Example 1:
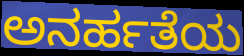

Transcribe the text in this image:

ಅನರ್ಹತೆಯ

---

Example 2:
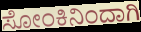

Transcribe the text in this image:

ಸೋಂಕಿನಿಂದಾಗಿ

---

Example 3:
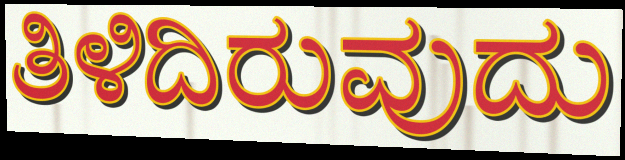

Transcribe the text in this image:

ತಿಳಿದಿರುವುದು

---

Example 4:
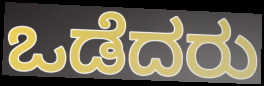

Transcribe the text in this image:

ಒಡೆದರು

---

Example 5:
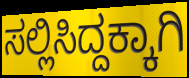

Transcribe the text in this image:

ಸಲ್ಲಿಸಿದ್ದಕ್ಕಾಗಿ